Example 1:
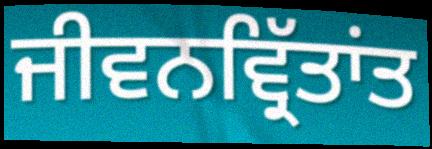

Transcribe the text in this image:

ਜੀਵਨਵ੍ਰਿੱਤਾਂਤ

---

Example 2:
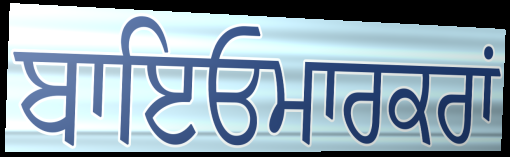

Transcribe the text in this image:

ਬਾਇਓਮਾਰਕਰਾਂ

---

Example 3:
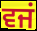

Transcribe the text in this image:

ਵਜਂ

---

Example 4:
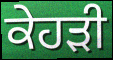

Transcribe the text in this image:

ਕੇਹੜੀ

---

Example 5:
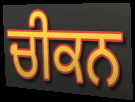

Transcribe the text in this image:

ਚੀਕਨ